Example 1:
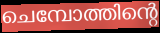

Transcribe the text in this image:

ചെമ്പോത്തിന്റെ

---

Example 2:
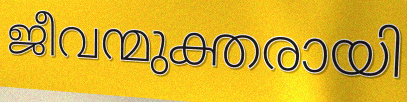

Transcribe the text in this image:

ജീവന്മുക്തരായി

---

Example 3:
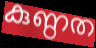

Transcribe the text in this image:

കുണ്ഠത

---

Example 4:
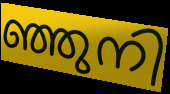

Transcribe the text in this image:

ഞ്ഞുനി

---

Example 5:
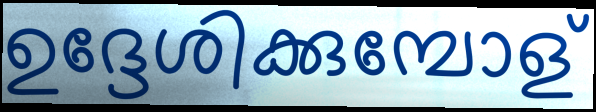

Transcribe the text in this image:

ഉദ്ദേശിക്കുമ്പോള്